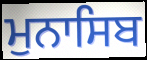
ਮੁਨਾਸਿਬ